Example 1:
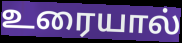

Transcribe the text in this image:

உரையால்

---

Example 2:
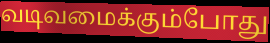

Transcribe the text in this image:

வடிவமைக்கும்போது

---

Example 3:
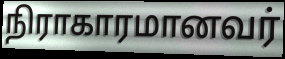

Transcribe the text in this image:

நிராகாரமானவர்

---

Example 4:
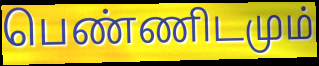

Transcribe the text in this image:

பெண்ணிடமும்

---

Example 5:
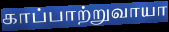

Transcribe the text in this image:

காப்பாற்றுவாயா